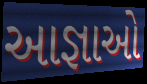
આજ્ઞાઓ